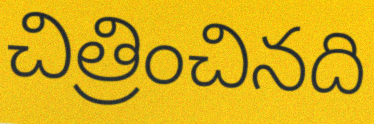
చిత్రించినది